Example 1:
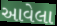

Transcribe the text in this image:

આવેલા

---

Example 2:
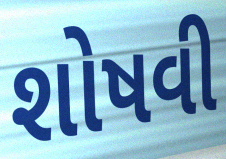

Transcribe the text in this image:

શોષવી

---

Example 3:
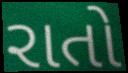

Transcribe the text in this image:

રાતો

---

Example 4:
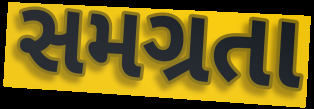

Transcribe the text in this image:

સમગ્રતા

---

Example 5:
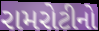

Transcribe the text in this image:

રામરોટીનો